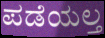
ಪಡೆಯಲ್ತ